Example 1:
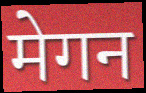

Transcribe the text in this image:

मेगन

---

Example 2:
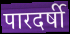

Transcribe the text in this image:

पारदर्षी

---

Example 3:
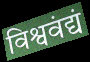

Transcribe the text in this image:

विश्ववंद्यं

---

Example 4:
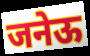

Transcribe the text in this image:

जनेऊ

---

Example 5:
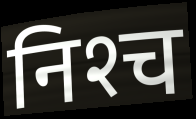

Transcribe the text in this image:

निश्च